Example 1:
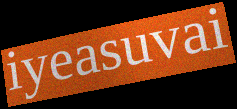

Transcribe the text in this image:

iyeasuvai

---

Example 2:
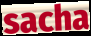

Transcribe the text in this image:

sacha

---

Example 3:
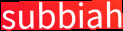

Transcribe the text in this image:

subbiah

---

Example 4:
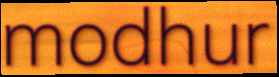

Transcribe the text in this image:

modhur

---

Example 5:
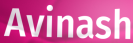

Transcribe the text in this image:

Avinash